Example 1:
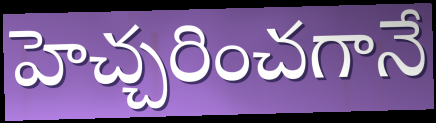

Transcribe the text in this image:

హెచ్చరించగానే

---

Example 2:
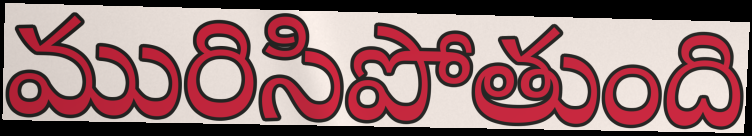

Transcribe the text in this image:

మురిసిపోతుంది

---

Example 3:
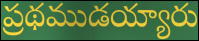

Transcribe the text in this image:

ప్రథముడయ్యారు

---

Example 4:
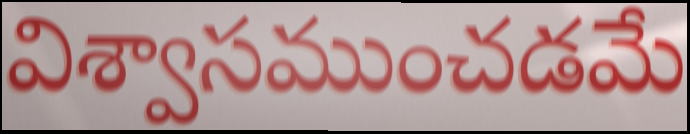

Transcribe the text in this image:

విశ్వాసముంచడమే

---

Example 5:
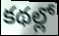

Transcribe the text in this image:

కథల్లో